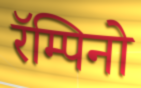
रॅम्पिनो